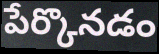
పేర్కొనడం